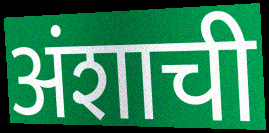
अंशाची